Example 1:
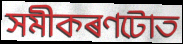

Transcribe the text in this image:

সমীকৰণটোত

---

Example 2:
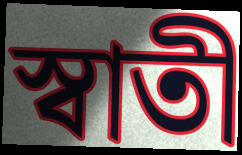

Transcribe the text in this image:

স্বাতী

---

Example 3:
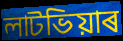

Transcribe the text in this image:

লাটভিয়াৰ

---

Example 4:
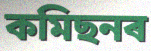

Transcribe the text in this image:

কমিছনৰ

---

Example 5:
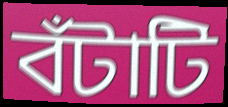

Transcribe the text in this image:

বঁটাটি